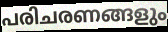
പരിചരണങ്ങളും